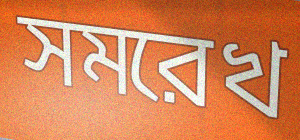
সমরেখ